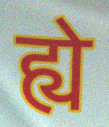
ह्ये